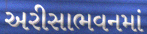
અરીસાભવનમાં